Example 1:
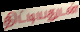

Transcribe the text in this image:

திட்டியதுடன்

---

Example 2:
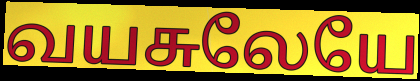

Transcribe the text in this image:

வயசுலேயே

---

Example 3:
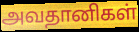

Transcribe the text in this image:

அவதானிகள்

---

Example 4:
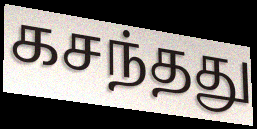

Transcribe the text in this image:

கசந்தது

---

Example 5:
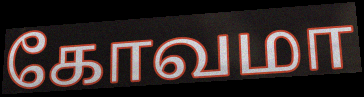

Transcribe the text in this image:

கோவமா